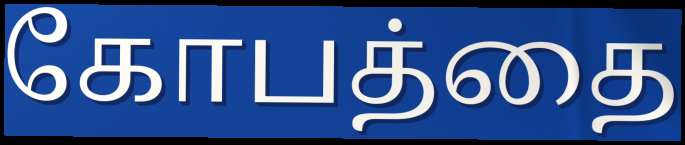
கோபத்தை